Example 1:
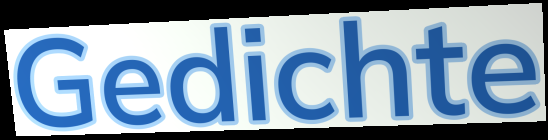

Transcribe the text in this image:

Gedichte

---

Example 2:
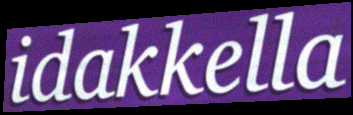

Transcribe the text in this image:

idakkella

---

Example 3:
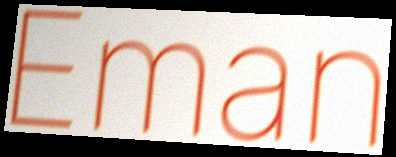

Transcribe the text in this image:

Eman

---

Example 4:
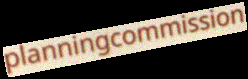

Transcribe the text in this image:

planningcommission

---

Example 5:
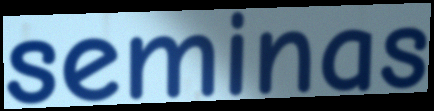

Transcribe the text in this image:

seminas